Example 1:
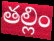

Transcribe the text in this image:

తల్లిం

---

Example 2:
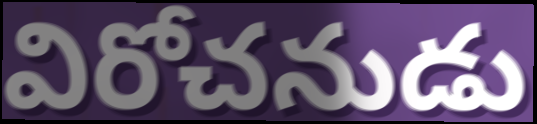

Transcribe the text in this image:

విరోచనుడు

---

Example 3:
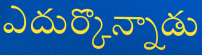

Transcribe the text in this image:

ఎదుర్కొన్నాడు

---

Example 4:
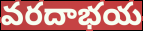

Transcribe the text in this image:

వరదాభయ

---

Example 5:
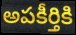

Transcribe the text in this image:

అపకీర్తికి